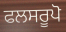
ਫਲਸਰੂਪੋ